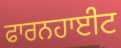
ਫਾਰਨਹਾਈਟ